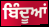
ਬਿੰਦੂਆਂ